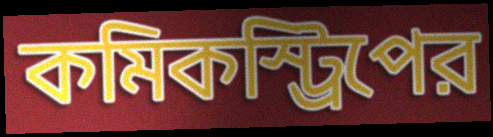
কমিকস্ট্রিপের